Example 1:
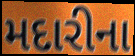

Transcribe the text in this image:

મદારીના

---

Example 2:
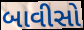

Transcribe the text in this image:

બાવીસો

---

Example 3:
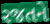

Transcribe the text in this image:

રજતને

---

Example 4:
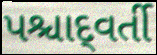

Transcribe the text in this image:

પશ્ચાદ્‌વર્તી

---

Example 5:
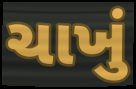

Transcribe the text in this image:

ચાખું